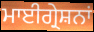
ਮਾਈਗ੍ਰੇਸ਼ਨਾਂ